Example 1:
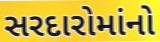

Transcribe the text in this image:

સરદારોમાંનો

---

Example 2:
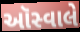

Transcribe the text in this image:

ઑસ્વાલે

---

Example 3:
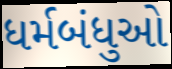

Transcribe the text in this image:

ધર્મબંધુઓ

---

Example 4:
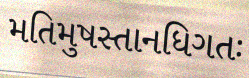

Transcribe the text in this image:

મતિમુષસ્તાનધિગતઃ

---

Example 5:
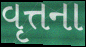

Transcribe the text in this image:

વૃત્તના